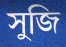
সুজি